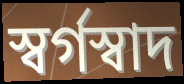
স্বর্গস্বাদ